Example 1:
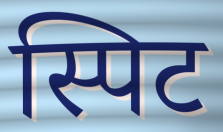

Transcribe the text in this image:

स्पिट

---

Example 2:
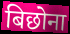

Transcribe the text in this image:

बिछोना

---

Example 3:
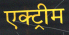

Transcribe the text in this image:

एक्ट्रीम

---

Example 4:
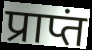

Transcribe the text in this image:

प्राप्तं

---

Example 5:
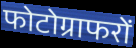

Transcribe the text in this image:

फोटोग्राफरों